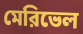
মেরিভেল